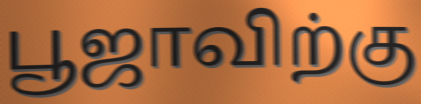
பூஜாவிற்கு